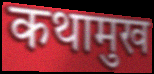
कथामुख